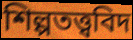
শিল্পতত্ত্ববিদ